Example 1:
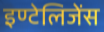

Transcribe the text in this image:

इण्टेलिजेंस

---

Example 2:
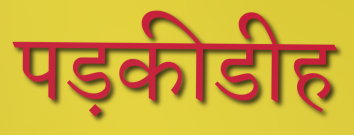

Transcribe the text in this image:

पड़कीडीह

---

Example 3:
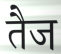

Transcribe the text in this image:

तैज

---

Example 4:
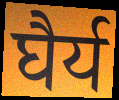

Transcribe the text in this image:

घैर्य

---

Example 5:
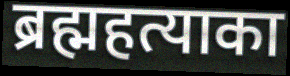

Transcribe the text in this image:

ब्रह्महत्याका